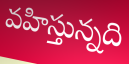
వహిస్తున్నది